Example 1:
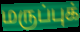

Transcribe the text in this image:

மருப்புக்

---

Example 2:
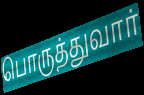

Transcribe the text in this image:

பொருத்துவார்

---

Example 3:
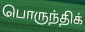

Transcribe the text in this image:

பொருந்திக்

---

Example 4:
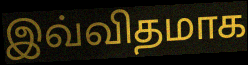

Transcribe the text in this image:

இவ்விதமாக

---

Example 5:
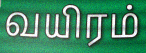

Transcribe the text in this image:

வயிரம்